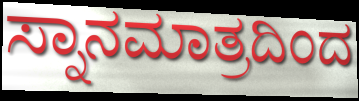
ಸ್ನಾನಮಾತ್ರದಿಂದ